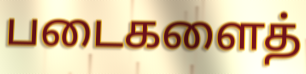
படைகளைத்